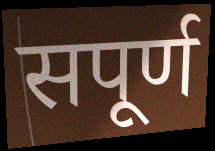
सपूर्ण